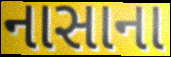
નાસાના